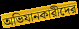
অভিযানকারীদের